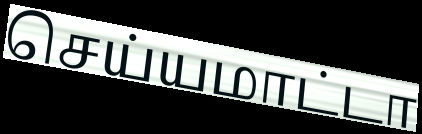
செய்யமாட்டா